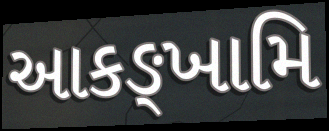
આકઙ્ખામિ